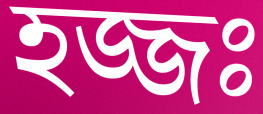
হজ্জঃ